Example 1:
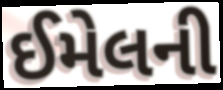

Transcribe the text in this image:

ઈમેલની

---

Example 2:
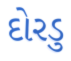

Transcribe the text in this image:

દોરડુ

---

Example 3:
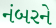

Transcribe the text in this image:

નંબરને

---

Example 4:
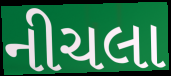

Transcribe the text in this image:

નીચલા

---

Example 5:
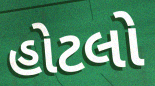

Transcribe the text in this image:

હોટલો